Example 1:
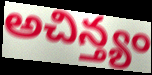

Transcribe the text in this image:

అచిన్త్యం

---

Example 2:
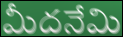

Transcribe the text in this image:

మీదనేమి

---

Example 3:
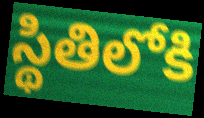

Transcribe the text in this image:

స్థితిలోకి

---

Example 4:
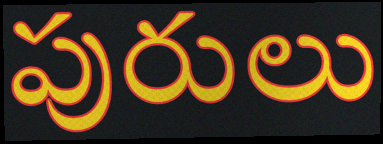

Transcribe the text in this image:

పురులు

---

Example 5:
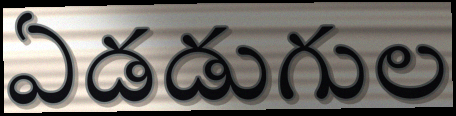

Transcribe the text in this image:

ఏడడుగుల